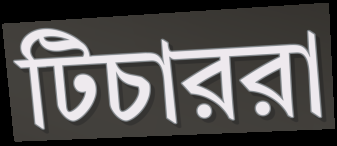
টিচাররা